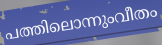
പത്തിലൊന്നുംവീതം